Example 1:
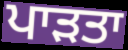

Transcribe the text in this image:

ਪਾੜਤਾ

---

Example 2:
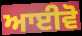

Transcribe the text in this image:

ਆਈਵੋ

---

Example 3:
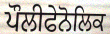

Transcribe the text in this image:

ਪੌਲੀਫੇਨੋਲਿਕ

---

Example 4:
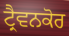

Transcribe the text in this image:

ਟ੍ਰੈਵਨਕੋਰ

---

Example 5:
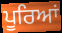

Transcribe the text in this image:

ਪੂਰਿਆਂ